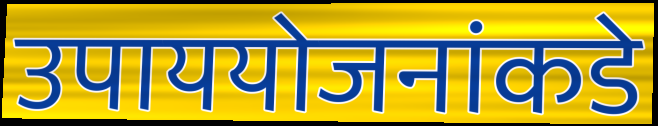
उपाययोजनांकडे